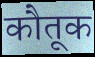
कौतूक